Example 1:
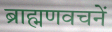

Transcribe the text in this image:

ब्राह्मणवचनें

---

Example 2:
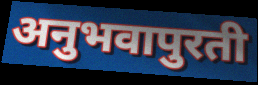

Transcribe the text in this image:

अनुभवापुरती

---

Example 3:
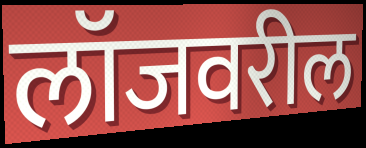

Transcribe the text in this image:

लॉजवरील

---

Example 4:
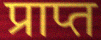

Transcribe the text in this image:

प्राप्त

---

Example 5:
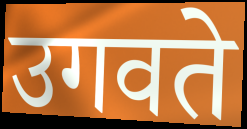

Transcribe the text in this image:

उगवते